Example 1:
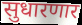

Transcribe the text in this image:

सुधारणार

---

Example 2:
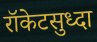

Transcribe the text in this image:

रॉकेटसुध्दा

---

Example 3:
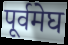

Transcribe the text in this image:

पूर्वमेघ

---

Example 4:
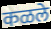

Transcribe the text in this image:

कळले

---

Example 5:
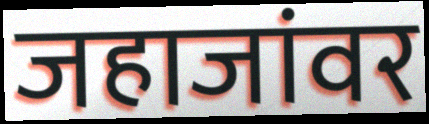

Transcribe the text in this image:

जहाजांवर